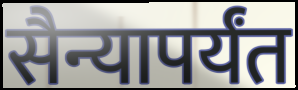
सैन्यापर्यंत